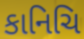
કાનિચિ